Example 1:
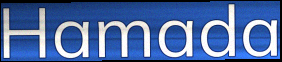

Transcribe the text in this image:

Hamada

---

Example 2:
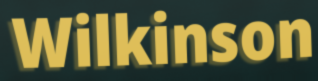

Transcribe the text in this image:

Wilkinson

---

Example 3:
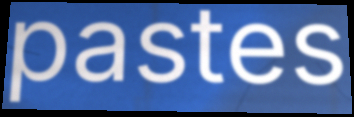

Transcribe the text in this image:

pastes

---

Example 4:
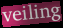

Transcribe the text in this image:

veiling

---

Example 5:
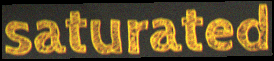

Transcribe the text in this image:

saturated